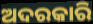
ଅଦରକାରି